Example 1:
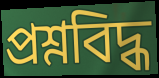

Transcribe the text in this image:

প্রশ্নবিদ্ধ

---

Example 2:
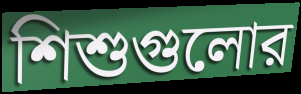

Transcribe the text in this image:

শিশুগুলোর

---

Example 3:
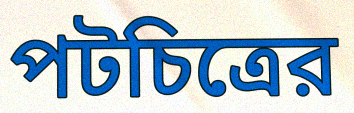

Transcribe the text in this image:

পটচিত্রের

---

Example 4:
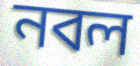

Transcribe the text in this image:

নবল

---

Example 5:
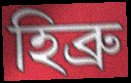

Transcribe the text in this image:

হিব্রু